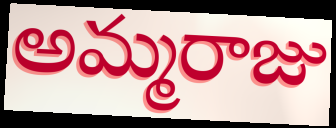
అమ్మరాజు